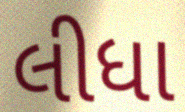
લીધા